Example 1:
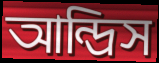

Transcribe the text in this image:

আন্দ্রিস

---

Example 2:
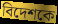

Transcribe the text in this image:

বিদেশকে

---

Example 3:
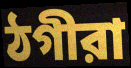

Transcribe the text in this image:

ঠগীরা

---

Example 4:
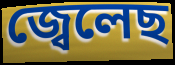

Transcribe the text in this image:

জ্বেলেছ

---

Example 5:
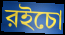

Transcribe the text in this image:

রইচো